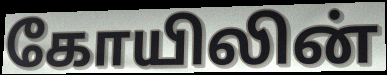
கோயிலின்